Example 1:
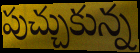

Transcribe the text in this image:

పుచ్చుకున్న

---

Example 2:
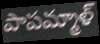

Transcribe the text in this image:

పాపమ్మాళ్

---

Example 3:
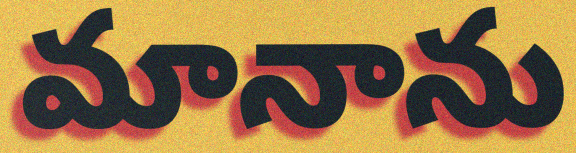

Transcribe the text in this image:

మానాను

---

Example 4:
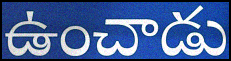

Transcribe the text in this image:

ఉంచాడు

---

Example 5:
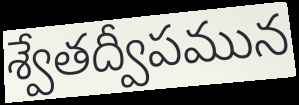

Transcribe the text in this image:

శ్వేతద్వీపమున